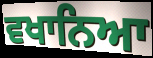
ਵਖਾਨਿਆ